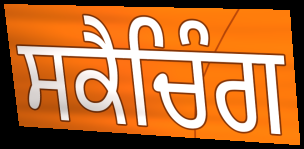
ਸਕੈਚਿੰਗ